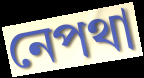
নেপথা